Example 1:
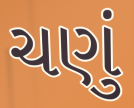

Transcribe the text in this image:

ચણું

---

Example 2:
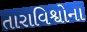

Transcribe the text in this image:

તારાવિશ્વોના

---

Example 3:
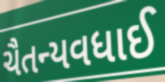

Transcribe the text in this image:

ચૈતન્યવધાઈ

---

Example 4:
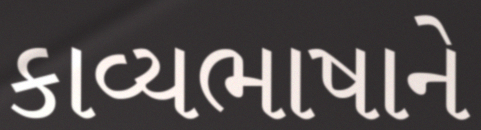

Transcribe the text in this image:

કાવ્યભાષાને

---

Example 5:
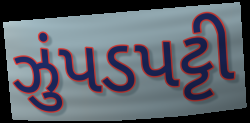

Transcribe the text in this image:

ઝુંપડપટ્ટી